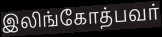
இலிங்கோத்பவர்